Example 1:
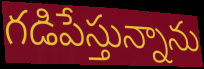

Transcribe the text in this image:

గడిపేస్తున్నాను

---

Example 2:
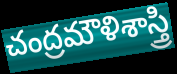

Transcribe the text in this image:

చంద్రమౌళిశాస్త్రి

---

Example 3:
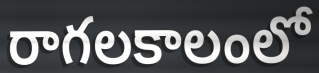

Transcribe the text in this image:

రాగలకాలంలో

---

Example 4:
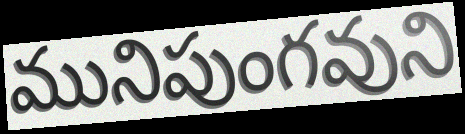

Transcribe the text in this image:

మునిపుంగవుని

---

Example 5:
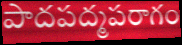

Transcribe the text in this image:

పాదపద్మపరాగం